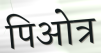
पिओत्र